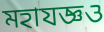
মহাযজ্ঞও